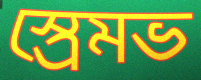
স্ত্রেমভ